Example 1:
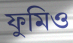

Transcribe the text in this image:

ফুমিও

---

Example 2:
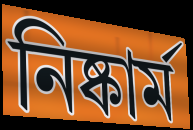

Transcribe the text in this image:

নিষ্কার্ম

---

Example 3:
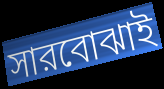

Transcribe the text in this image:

সারবোঝাই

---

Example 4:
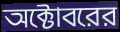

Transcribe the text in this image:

অক্টোবরের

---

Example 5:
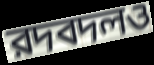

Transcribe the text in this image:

রদবদলও